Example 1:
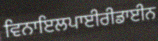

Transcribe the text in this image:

ਵਿਨਾਇਲਪਾਈਰੀਡਾਈਨ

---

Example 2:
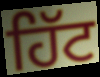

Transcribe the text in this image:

ਹਿੱਟ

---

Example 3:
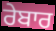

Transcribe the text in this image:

ਰੇਬਾਰ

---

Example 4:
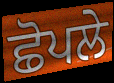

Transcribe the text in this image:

ਛੋਪਲੇ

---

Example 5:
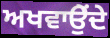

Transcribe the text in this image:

ਅਖਵਾਉੇਂਦੇ